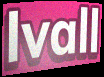
Ivall